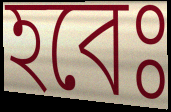
হবেঃ